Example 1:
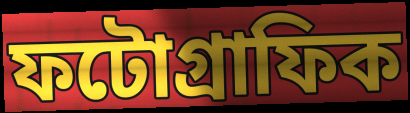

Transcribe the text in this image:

ফটোগ্ৰাফিক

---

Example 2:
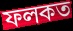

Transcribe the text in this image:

ফলকত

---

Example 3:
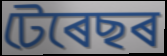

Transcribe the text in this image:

টেৰেছৰ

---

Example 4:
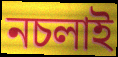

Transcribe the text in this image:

নচলাই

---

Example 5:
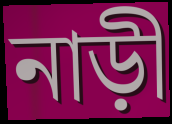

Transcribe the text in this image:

নাড়ী